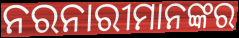
ନରନାରୀମାନଙ୍କର